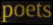
poets